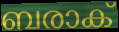
ബരാക്